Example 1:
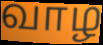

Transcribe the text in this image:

வாழ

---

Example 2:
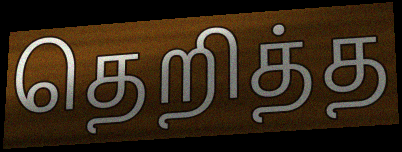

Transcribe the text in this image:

தெறித்த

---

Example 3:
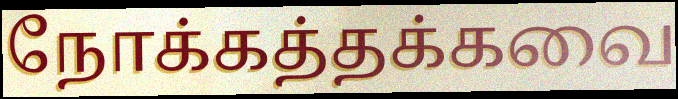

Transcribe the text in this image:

நோக்கத்தக்கவை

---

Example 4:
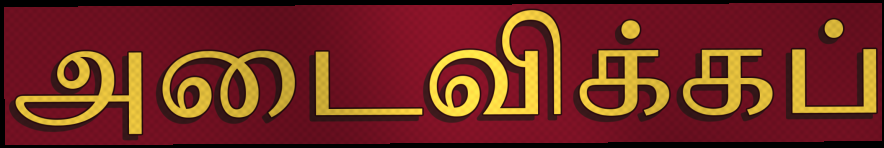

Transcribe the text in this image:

அடைவிக்கப்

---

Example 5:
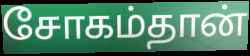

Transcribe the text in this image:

சோகம்தான்